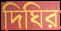
দিঘির